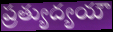
ప్రత్యుద్యయౌ